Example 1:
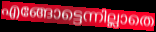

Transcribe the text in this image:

എങ്ങോട്ടെന്നില്ലാതെ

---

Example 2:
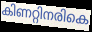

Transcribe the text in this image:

കിണറ്റിനരികെ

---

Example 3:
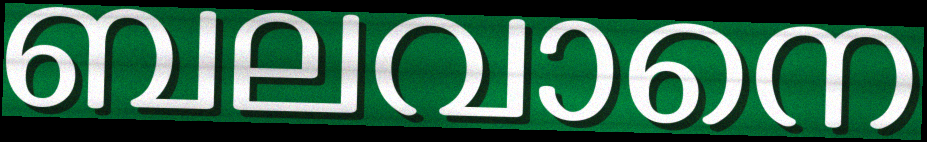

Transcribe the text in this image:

ബലവാനെ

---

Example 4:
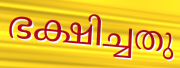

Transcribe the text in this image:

ഭക്ഷിച്ചതു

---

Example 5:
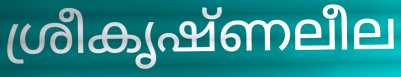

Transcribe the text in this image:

ശ്രീകൃഷ്ണലീല